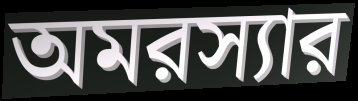
অমরস্যার